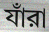
যাঁরা